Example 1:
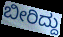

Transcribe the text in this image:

ಬೀರಿದ್ದು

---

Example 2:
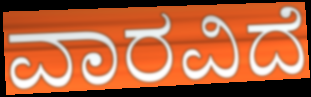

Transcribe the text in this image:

ವಾರವಿದೆ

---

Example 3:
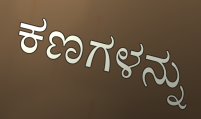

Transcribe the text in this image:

ಕಣಗಳನ್ನು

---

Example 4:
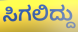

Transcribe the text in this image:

ಸಿಗಲಿದ್ದು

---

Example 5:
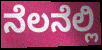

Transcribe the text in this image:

ನೆಲನೆಲ್ಲಿ